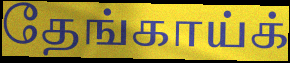
தேங்காய்க்